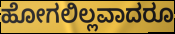
ಹೋಗಲಿಲ್ಲವಾದರೂ